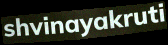
shvinayakruti